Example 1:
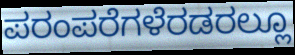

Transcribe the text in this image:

ಪರಂಪರೆಗಳೆರಡರಲ್ಲೂ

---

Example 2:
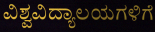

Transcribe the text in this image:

ವಿಶ್ವವಿದ್ಯಾಲಯಗಳಿಗೆ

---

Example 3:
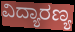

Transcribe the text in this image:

ವಿದ್ಯಾರಣ್ಯ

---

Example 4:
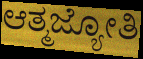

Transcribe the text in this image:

ಆತ್ಮಜ್ಯೋತಿ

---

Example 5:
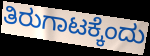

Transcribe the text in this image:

ತಿರುಗಾಟಕ್ಕೆಂದು